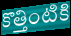
కొత్తింటికి